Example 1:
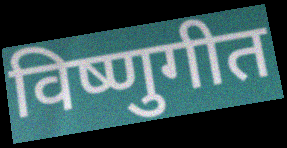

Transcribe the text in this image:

विष्णुगीत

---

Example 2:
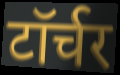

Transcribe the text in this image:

टॉर्चर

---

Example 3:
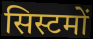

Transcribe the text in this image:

सिस्टमों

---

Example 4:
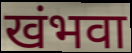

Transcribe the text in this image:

खंभवा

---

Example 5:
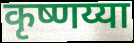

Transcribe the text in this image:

कृष्णय्या